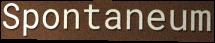
Spontaneum